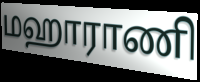
மஹாராணி